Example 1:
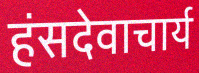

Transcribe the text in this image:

हंसदेवाचार्य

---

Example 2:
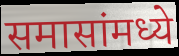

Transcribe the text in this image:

समासांमध्ये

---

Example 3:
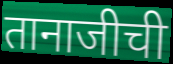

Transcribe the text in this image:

तानाजीची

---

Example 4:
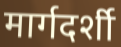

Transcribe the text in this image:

मार्गदर्शी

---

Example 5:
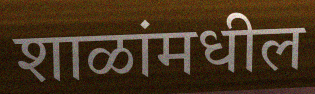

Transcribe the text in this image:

शाळांमधील